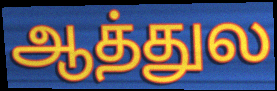
ஆத்துல